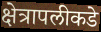
क्षेत्रापलीकडे